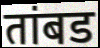
तांबड